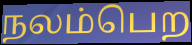
நலம்பெற